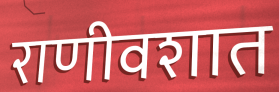
राणीवशात